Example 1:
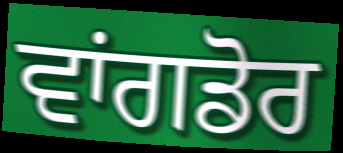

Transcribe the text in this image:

ਵਾਂਗਡੋਰ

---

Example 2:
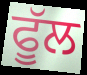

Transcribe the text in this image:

ਫੂੱਲ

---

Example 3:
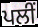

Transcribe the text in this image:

ਪਲੀਂ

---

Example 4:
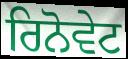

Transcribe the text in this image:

ਰਿਨੋਵੇਟ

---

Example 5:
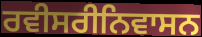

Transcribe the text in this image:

ਰਵੀਸਰੀਨਿਵਾਸਨ